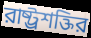
রাষ্ট্রশক্তির